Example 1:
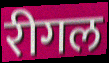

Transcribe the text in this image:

रीगल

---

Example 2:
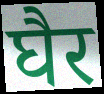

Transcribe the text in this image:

घैर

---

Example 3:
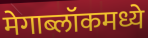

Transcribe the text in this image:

मेगाब्लॉकमध्ये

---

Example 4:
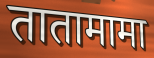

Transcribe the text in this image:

तातामामा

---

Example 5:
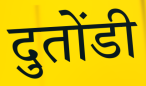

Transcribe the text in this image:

दुतोंडी